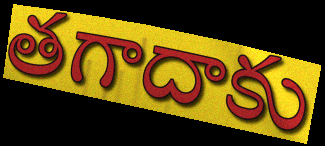
తగాదాకు